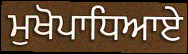
ਮੁਖੋਪਾਧਿਆਏ